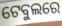
ଟେବୁଲରେ